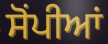
ਸੋਂਪੀਆਂ